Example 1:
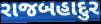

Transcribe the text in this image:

રાજબહાદુર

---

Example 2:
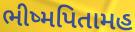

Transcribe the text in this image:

ભીષ્મપિતામહ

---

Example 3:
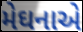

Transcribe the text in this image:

મેઘનાએ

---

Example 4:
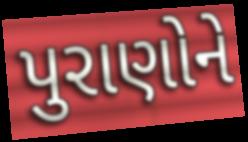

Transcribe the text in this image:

પુરાણોને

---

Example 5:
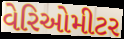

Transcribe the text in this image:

વેરિઓમીટર